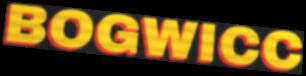
BOGWICC